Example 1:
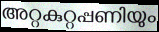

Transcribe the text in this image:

അറ്റകുറ്റപ്പണിയും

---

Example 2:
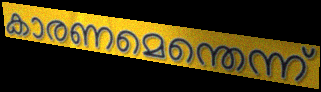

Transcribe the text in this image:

കാരണമെന്തെന്ന്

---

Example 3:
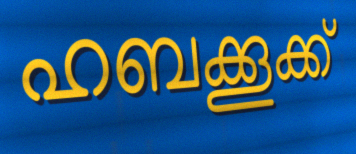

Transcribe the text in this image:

ഹബക്കൂക്ക്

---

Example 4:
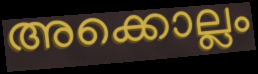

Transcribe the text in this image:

അക്കൊല്ലം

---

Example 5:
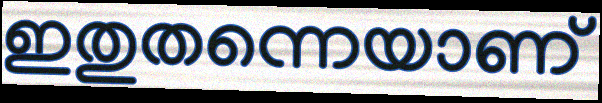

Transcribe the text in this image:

ഇതുതന്നെയാണ്